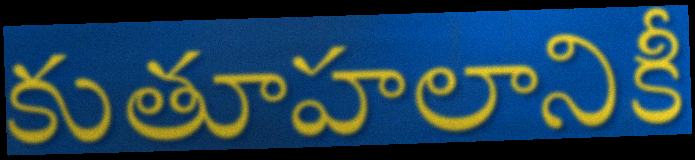
కుతూహలానికీ